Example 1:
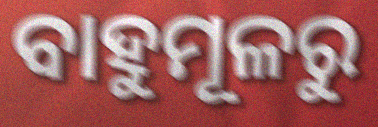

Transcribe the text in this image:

ବାହୁମୂଳରୁ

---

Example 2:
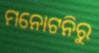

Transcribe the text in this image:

ମନୋଟନିରୁ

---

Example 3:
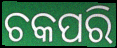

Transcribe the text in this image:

ଚକପରି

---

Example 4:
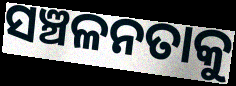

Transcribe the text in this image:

ସଞ୍ଚଳନତାକୁ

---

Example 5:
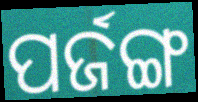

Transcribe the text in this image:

ପର୍ଜଙ୍ଗ